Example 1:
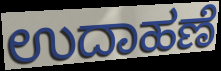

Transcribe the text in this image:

ಉದಾಹಣೆ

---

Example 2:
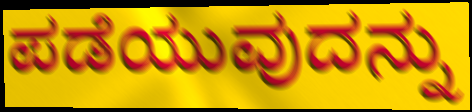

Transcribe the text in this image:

ಪಡೆಯುವುದನ್ನು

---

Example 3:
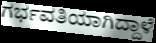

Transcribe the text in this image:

ಗರ್ಭವತಿಯಾಗಿದ್ದಾಳೆ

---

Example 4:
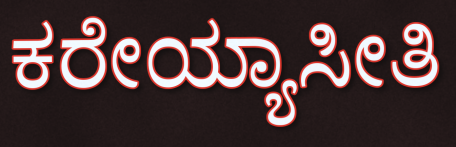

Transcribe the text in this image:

ಕರೇಯ್ಯಾಸೀತಿ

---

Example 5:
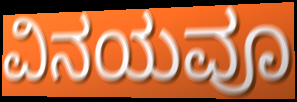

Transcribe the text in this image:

ವಿನಯವೂ